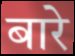
बारे